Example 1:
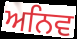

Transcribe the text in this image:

ਅਨਿਵ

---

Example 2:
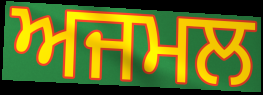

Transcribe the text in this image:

ਅਜਮਲ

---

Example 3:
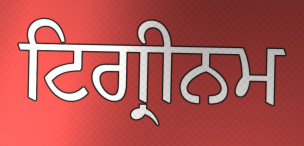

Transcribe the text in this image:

ਟਿਗ੍ਰੀਨਮ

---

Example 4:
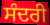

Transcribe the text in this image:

ਸੰਦਰੀ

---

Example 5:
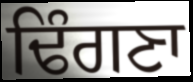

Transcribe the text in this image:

ਢਿੰਗਣਾ